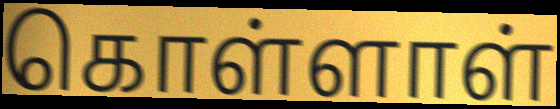
கொள்ளாள்